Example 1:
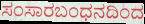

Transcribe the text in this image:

ಸಂಸಾರಬಂಧನದಿಂದ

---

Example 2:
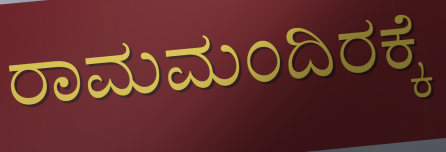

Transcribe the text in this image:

ರಾಮಮಂದಿರಕ್ಕೆ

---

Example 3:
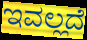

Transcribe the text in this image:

ಇವಲ್ಲದೆ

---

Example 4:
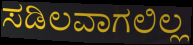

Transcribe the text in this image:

ಸಡಿಲವಾಗಲಿಲ್ಲ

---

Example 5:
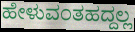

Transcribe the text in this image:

ಹೇಳುವಂತಹದ್ದಲ್ಲ